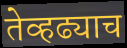
तेव्हढ्याच